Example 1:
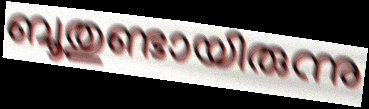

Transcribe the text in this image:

ബൂതുണ്ടായിരുന്നു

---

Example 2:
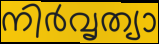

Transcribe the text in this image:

നിർവൃത്യാ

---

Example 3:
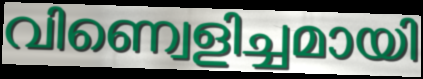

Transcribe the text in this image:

വിണ്വെളിച്ചമായി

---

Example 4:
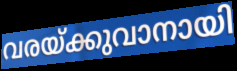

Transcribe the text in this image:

വരയ്ക്കുവാനായി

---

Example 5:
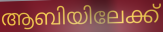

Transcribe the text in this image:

ആബിയിലേക്ക്